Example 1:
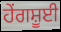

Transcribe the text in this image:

ਹੇਂਗਸ਼ੂਈ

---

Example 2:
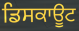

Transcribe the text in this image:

ਡਿਸਕਾਊਟ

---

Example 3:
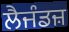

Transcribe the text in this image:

ਲੈਜੰਡਜ਼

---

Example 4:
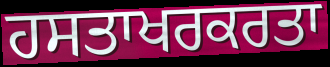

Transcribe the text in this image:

ਹਸਤਾਖਰਕਰਤਾ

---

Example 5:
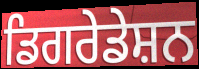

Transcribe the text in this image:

ਡਿਗਰੇਡੇਸ਼ਨ